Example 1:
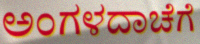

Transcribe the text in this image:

ಅಂಗಳದಾಚೆಗೆ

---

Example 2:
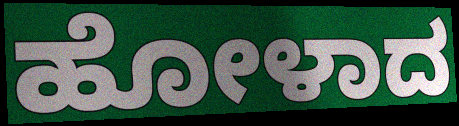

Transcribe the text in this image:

ಹೋಳಾದ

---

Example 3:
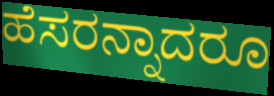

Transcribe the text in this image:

ಹೆಸರನ್ನಾದರೂ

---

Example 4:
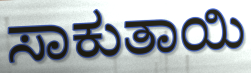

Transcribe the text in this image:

ಸಾಕುತಾಯಿ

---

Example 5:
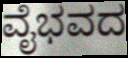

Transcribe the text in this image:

ವೈಭವದ